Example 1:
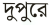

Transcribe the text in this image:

দুপুরে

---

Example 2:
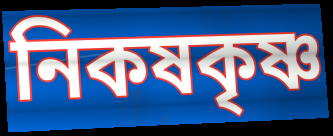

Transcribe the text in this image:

নিকষকৃষ্ণ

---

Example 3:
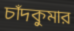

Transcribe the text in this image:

চাঁদকুমার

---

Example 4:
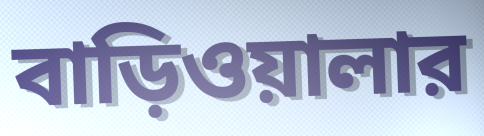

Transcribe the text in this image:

বাড়িওয়ালার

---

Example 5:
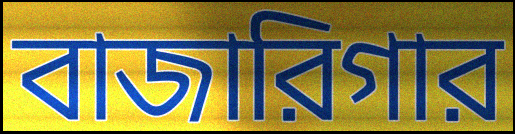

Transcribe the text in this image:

বাজারিগার